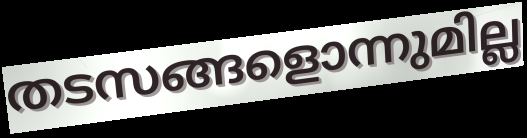
തടസങ്ങളൊന്നുമില്ല